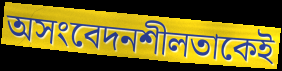
অসংবেদনশীলতাকেই